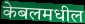
केबलमधील